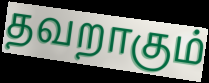
தவறாகும்